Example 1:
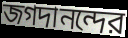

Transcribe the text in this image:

জগদানন্দের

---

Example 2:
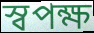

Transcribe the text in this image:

স্বপক্ষ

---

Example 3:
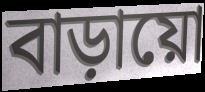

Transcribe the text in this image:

বাড়ায়ো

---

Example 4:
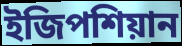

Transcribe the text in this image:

ইজিপশিয়ান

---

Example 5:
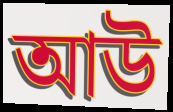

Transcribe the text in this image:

আউ